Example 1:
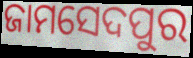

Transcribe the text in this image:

ଜାମସେଦପୁର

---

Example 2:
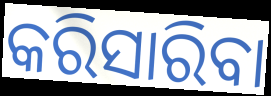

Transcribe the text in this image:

କରିସାରିବା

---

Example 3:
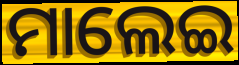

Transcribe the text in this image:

ମାଲେଇ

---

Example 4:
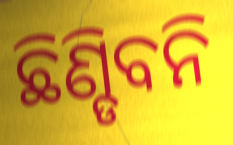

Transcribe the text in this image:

ଛିଣ୍ଡିବନି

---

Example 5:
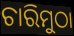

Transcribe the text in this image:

ଚାରିମୁଠା